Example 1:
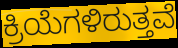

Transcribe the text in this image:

ಕ್ರಿಯೆಗಳಿರುತ್ತವೆ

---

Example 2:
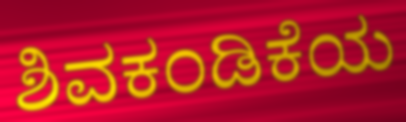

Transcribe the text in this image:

ಶಿವಕಂಡಿಕೆಯ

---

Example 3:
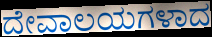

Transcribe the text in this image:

ದೇವಾಲಯಗಳಾದ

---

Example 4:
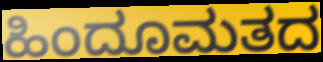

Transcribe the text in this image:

ಹಿಂದೂಮತದ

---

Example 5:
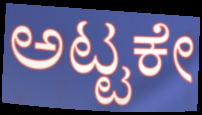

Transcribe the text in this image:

ಅಟ್ಟಕೇ